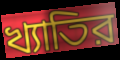
খ্যাতির